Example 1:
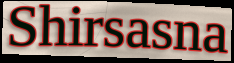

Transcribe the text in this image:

Shirsasna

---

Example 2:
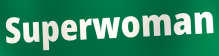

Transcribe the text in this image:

Superwoman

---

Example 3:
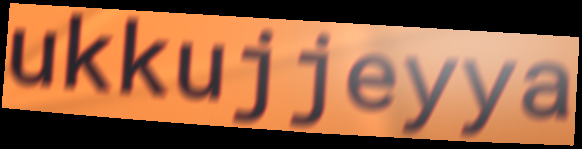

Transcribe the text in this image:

ukkujjeyya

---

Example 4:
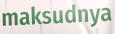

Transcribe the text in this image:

maksudnya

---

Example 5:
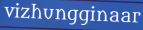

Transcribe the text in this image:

vizhungginaar